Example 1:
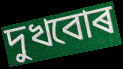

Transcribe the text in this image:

দুখবোৰ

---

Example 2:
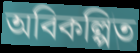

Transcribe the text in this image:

অবিকল্পিত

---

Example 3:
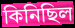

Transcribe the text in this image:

কিনিছিল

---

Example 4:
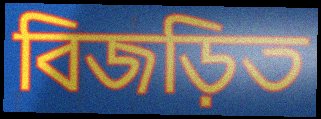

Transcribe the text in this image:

বিজড়িত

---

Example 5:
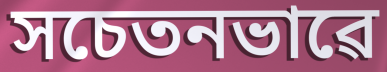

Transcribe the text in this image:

সচেতনভাৱে